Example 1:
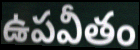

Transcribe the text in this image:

ఉపవీతం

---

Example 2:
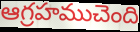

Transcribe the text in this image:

ఆగ్రహముచెంది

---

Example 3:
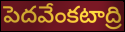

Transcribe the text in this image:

పెదవేంకటాద్రి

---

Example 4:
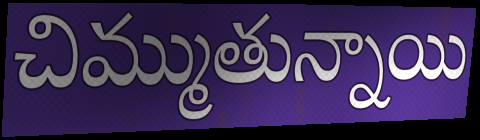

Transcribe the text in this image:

చిమ్ముతున్నాయి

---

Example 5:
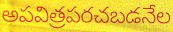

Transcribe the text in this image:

అపవిత్రపరచబడనేల